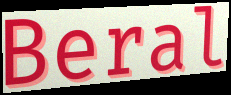
Beral